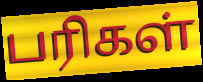
பரிகள்